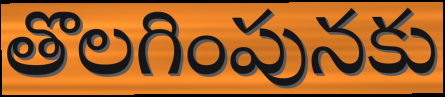
తొలగింపునకు